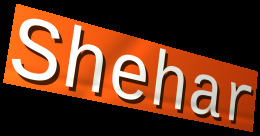
Shehar